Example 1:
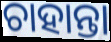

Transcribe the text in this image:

ଚାହାନ୍ତା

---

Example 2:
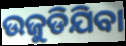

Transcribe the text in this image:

ଉଜୁଡିଯିବା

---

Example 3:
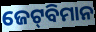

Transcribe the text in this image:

ଜେଟ୍‍ବିମାନ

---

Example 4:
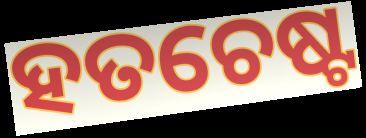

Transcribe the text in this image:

ହତଚେଷ୍ଟ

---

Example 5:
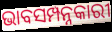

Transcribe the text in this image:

ଭାବସମ୍ପନ୍ନକାରୀ